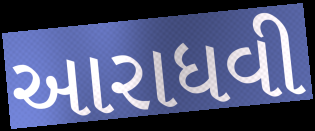
આરાધવી